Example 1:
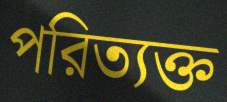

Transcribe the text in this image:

পরিত্যক্ত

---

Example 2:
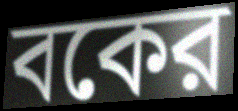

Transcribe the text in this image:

বকের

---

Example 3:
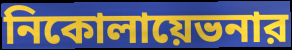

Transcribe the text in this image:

নিকোলায়েভনার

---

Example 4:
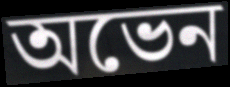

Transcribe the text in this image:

অভেন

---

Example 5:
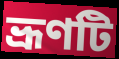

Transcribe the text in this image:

ভ্রূণটি